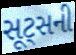
સૂટ્સની